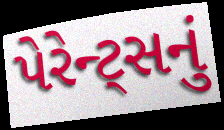
પેરેન્ટ્સનું